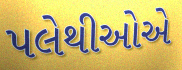
પલેથીઓએ